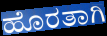
ಹೊರತಾಗಿ